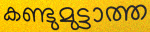
കണ്ടുമുട്ടാത്ത